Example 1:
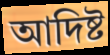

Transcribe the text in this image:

আদিষ্ট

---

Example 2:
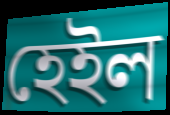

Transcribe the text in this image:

হেইল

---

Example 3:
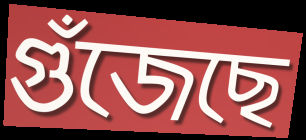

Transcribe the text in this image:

গুঁজেছে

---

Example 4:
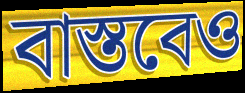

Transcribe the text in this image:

বাস্তবেও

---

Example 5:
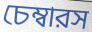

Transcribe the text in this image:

চেম্বারস